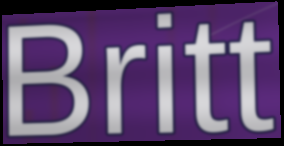
Britt